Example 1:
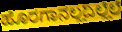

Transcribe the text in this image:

ಹೊರಗಾನಲ್ಲದಿಲ್ಲೆಲೆ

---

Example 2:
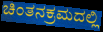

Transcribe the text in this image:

ಚಿಂತನಕ್ರಮದಲ್ಲಿ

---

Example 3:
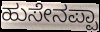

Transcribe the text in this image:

ಹುಸೇನಪ್ಪಾ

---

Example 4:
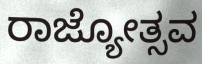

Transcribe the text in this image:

ರಾಜ್ಯೋತ್ಸವ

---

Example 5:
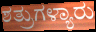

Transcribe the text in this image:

ಶತ್ರುಗಳ್ಯಾರು